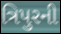
ત્રિપુરની